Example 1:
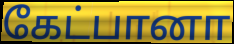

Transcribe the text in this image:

கேட்பானா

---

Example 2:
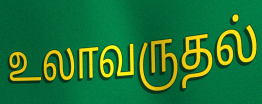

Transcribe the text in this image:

உலாவருதல்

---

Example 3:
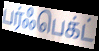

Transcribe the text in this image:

பர்ஃபெக்ட்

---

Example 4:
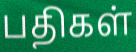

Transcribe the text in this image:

பதிகள்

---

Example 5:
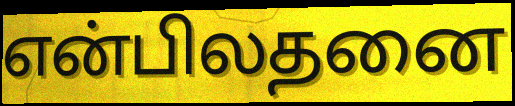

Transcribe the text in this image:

என்பிலதனை